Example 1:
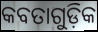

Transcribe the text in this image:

କବତାଗୁଡ଼ିକ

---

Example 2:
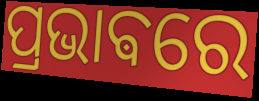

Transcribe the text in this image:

ପ୍ରଭାଵରେ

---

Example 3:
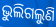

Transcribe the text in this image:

ଭୁଲିଗଲୁଣି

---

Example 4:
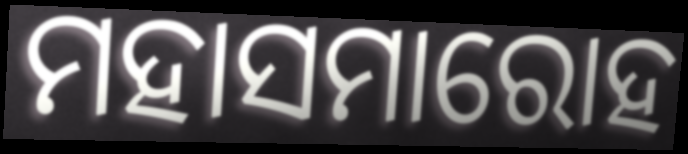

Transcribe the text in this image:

ମହାସମାରୋହ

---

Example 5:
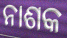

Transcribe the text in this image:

ନାଶକ